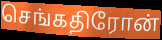
செங்கதிரோன்